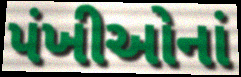
પંખીઓનાં